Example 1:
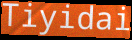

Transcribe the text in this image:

Tiyidai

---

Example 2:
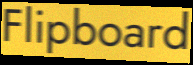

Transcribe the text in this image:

Flipboard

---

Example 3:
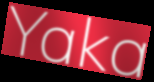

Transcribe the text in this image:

Yaka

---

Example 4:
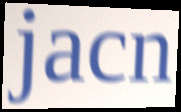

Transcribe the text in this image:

jacn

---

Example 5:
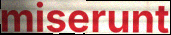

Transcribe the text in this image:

miserunt